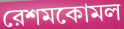
রেশমকোমল